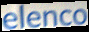
elenco